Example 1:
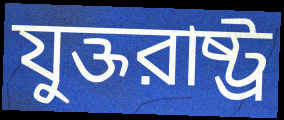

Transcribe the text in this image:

যুক্তরাষ্ট্র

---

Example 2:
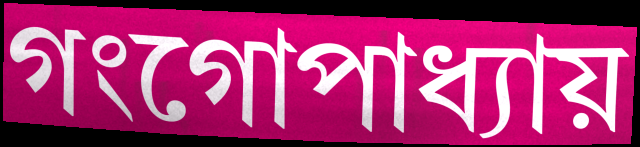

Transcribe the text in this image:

গংগোপাধ্যায়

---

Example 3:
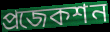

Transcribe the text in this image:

প্রজেকশন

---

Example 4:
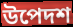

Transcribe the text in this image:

উপেদশ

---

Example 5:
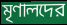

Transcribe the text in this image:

মৃণালদের